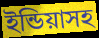
ইন্ডিয়াসহ